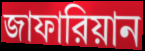
জাফারিয়ান